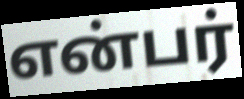
என்பர்